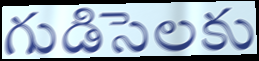
గుడిసెలకు